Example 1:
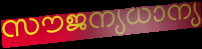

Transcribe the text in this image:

സൗജന്യധാന്യ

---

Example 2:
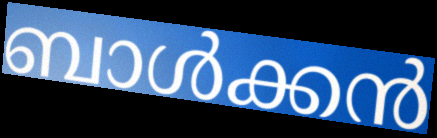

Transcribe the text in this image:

ബാൾക്കൻ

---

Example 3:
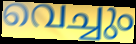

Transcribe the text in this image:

വെച്ചും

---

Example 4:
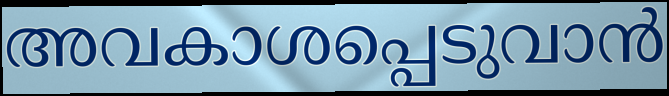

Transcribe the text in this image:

അവകാശപ്പെടുവാൻ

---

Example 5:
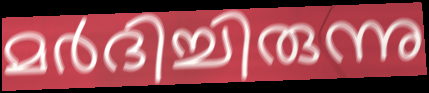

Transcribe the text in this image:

മർദിച്ചിരുന്നു